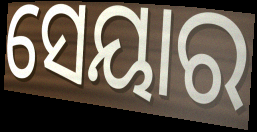
ସେୟାର